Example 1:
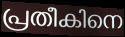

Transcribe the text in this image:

പ്രതീകിനെ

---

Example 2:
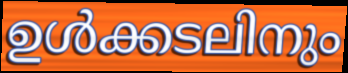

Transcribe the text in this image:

ഉൾക്കടലിനും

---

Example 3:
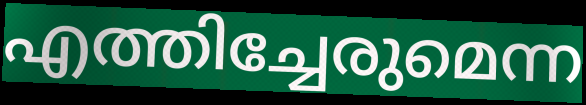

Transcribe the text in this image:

എത്തിച്ചേരുമെന്ന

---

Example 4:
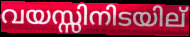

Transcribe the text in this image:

വയസ്സിനിടയില്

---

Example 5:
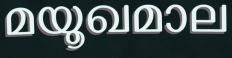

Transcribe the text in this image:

മയൂഖമാല